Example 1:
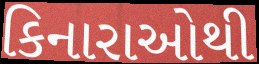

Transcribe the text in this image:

કિનારાઓથી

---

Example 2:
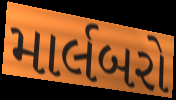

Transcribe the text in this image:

માર્લબરો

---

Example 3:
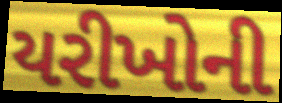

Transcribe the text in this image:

યરીખોની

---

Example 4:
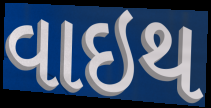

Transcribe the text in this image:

વાઇથ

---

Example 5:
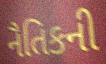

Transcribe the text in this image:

નૈતિકની